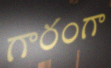
గారంగా